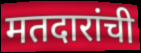
मतदारांची